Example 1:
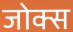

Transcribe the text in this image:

जोक्स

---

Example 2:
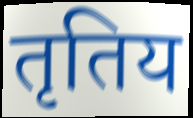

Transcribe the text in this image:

तृतिय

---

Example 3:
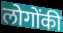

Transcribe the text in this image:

लोगोंकी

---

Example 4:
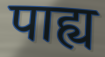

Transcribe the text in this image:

पाह्य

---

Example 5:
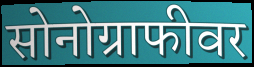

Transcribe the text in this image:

सोनोग्राफीवर